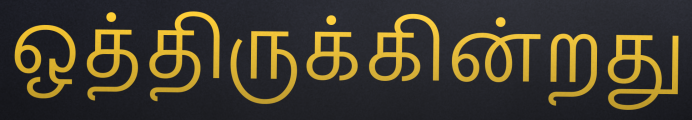
ஒத்திருக்கின்றது